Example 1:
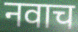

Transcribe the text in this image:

नवाच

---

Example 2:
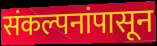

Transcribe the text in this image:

संकल्पनांपासून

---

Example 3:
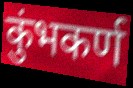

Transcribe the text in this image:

कुंभकर्ण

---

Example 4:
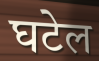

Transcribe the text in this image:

घटेल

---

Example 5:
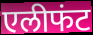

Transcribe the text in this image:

एलीफंट